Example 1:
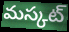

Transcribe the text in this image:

మస్కట్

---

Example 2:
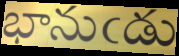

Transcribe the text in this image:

భానుఁడు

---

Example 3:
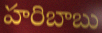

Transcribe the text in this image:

హరిబాబు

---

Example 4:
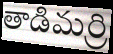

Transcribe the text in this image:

తాడిమర్రి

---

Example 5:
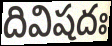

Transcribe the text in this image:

దివిషదః